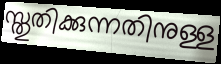
സ്തുതിക്കുന്നതിനുള്ള